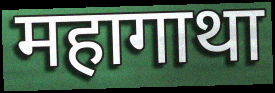
महागाथा